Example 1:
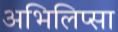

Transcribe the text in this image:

अभिलिप्सा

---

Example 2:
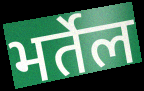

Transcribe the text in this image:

भर्तेल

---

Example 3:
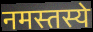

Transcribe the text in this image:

नमस्तस्ये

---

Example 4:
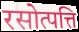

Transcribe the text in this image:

रसोत्पत्ति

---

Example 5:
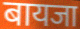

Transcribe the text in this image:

बायजा